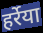
हर्रेया